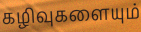
கழிவுகளையும்